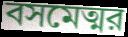
বসমেত্মর